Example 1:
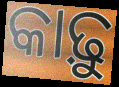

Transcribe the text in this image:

କାଢ଼ୁ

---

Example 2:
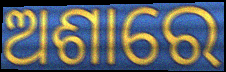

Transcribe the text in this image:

ଅଶାରେ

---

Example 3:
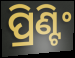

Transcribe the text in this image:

ପ୍ରିଣ୍ଟିଂ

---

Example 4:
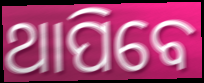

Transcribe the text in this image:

ଥାପିବେ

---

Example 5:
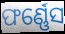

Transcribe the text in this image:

ଫର୍ଣ୍ଣେସ